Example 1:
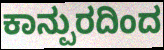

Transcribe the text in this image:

ಕಾನ್ಪುರದಿಂದ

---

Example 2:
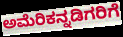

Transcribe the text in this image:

ಅಮೆರಿಕನ್ನಡಿಗರಿಗೆ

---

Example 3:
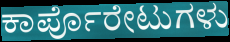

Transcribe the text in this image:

ಕಾರ್ಪೊರೇಟುಗಳು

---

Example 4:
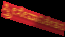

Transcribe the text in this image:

ಸ್ತ್ರೀಸೇವಾನಿಕೇತನ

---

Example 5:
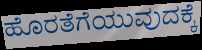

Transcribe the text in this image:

ಹೊರತೆಗೆಯುವುದಕ್ಕೆ